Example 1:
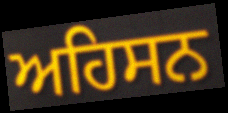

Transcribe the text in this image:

ਅਹਿਸਨ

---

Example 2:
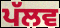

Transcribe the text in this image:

ਪੱਲਵ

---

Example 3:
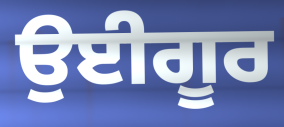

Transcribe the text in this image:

ਉਈਗੂਰ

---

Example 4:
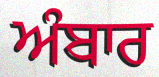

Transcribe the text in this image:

ਅੰਬਾਰ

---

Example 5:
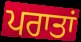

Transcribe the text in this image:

ਪਰਾਤਾਂ